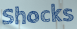
Shocks